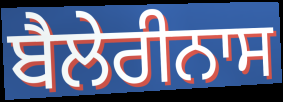
ਬੈਲੇਰੀਨਾਸ